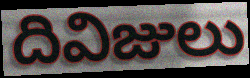
దివిజులు